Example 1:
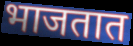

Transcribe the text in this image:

भाजतात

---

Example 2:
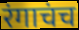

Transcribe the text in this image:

रंगाचंच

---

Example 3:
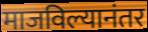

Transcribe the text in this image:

माजविल्यानंतर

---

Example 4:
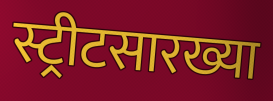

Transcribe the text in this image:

स्ट्रीटसारख्या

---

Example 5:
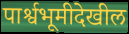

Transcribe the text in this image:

पार्श्वभूमीदेखील